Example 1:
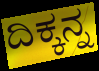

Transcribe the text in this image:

ದಿಕ್ಕನ್ನ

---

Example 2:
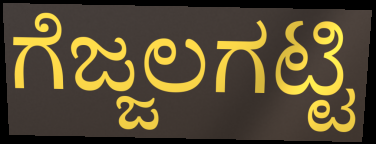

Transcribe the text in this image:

ಗೆಜ್ಜಲಗಟ್ಟಿ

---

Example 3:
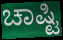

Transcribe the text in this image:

ಚಾಷ್ಟಿ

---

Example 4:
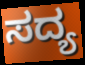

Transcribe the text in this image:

ಸದ್ಯ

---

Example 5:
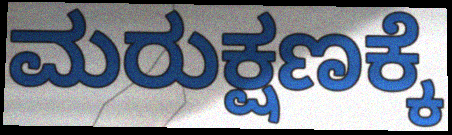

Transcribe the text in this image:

ಮರುಕ್ಷಣಕ್ಕೆ